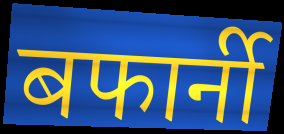
बफार्नी